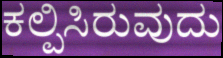
ಕಲ್ಪಿಸಿರುವುದು